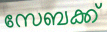
സേബക്ക്